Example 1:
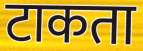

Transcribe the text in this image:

टाकता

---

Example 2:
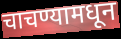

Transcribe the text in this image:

चाचण्यामधून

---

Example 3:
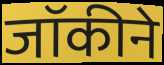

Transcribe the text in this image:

जॉकीने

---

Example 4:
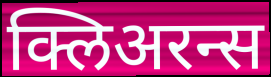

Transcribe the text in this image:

क्लिअरन्स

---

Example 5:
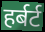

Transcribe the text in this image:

हर्बर्ट